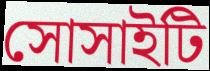
সোসাইটি